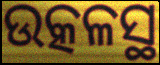
ଉତ୍କଳସ୍ଥ